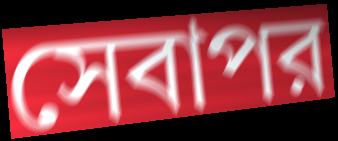
সেবাপর